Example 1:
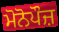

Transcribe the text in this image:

ਮੋਨੋਪੌਜ਼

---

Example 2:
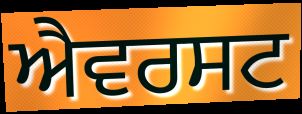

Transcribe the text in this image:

ਐਵਰਸਟ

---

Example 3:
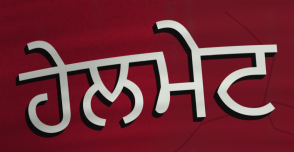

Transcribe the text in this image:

ਹੇਲਮੇਟ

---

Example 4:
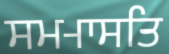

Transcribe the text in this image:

ਸਮ੍ਮਾਸਤਿ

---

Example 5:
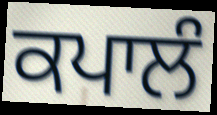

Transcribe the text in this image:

ਕਪਾਲੰ